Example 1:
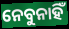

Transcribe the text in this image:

ନେବୁନାହିଁ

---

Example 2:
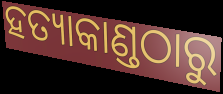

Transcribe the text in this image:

ହତ୍ୟାକାଣ୍ଡଠାରୁ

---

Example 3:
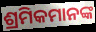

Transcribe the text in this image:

ଶ୍ରମିକମାନଙ୍କ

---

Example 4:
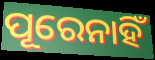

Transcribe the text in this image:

ପୂରେନାହିଁ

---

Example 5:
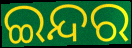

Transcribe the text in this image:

ଇନ୍ଦର